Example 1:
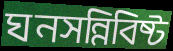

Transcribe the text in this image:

ঘনসন্নিবিষ্ট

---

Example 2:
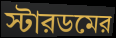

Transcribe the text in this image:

স্টারডমের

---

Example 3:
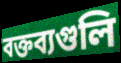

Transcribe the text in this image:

বক্তব্যগুলি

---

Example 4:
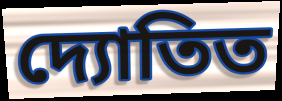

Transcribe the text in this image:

দ্যোতিত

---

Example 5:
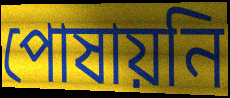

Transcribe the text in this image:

পোষায়নি